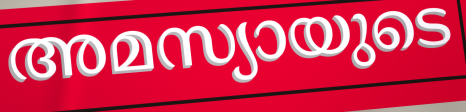
അമസ്യായുടെ